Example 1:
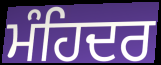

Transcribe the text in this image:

ਮੰਹਿਦਰ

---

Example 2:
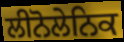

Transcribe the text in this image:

ਲੀਨੋਲੇਨਿਕ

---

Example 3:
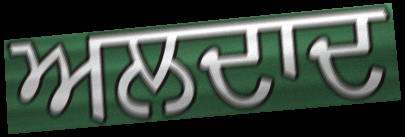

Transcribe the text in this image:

ਅਲਦਾਦ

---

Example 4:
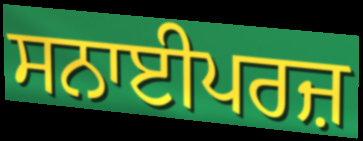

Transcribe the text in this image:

ਸਨਾਈਪਰਜ਼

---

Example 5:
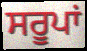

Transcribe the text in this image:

ਸਰੂਪਾਂ